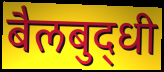
बैलबुद्धी